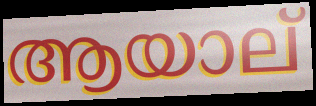
ആയാല്